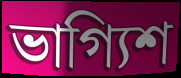
ভাগ্যিশ